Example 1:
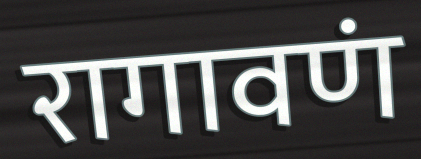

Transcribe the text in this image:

रागावणं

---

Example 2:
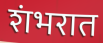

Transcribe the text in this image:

शंभरात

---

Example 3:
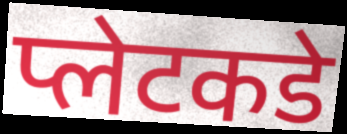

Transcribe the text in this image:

प्लेटकडे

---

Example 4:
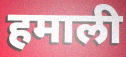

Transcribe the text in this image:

हमाली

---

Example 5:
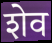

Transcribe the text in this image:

शेव